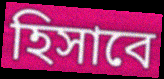
হিসাবে